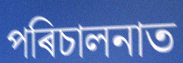
পৰিচালনাত